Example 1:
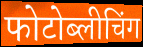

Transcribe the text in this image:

फोटोब्लीचिंग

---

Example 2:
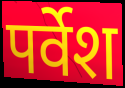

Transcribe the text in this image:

पर्वेश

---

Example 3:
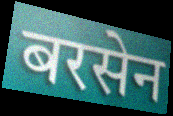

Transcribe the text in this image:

बरसेन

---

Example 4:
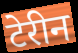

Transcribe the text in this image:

टेरीन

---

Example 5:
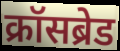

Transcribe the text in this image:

क्रॉसब्रेड